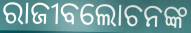
ରାଜୀବଲୋଚନଙ୍କ